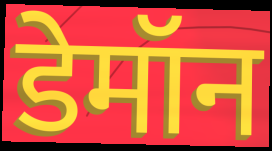
डेमॉन